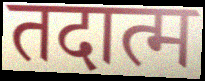
तदात्म